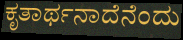
ಕೃತಾರ್ಥನಾದೆನೆಂದು